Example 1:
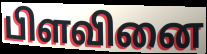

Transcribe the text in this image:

பிளவினை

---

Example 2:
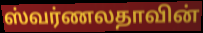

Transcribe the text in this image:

ஸ்வர்ணலதாவின்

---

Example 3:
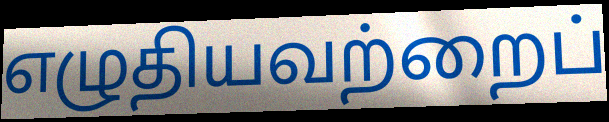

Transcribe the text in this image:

எழுதியவற்றைப்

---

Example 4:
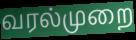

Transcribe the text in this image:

வரல்முறை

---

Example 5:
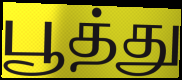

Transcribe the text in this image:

பூத்து